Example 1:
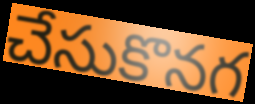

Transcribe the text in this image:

చేసుకొనగ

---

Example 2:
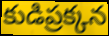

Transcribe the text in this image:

కుడిప్రక్కన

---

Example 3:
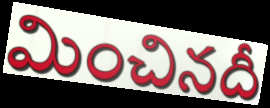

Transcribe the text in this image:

మించినదీ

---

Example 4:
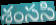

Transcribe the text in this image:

శంససి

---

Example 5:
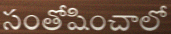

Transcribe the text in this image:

సంతోషించాలో